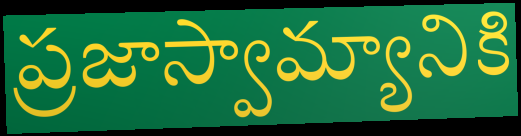
ప్రజాస్వామ్యానికి